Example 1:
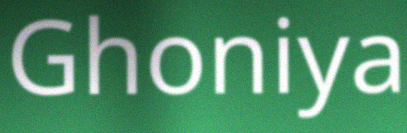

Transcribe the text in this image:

Ghoniya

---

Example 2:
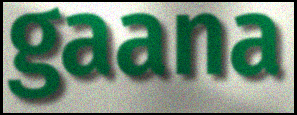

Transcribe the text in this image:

gaana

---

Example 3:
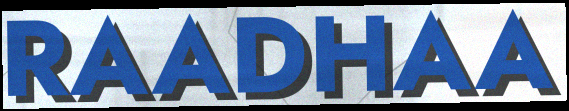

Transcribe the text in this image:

RAADHAA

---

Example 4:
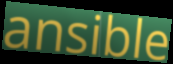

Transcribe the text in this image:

ansible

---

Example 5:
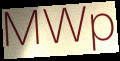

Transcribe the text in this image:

MWp